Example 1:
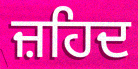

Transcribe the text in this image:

ਜ਼ਹਿਦ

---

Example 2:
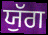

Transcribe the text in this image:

ਯੁੱਗ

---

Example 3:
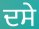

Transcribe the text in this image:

ਦਸੇ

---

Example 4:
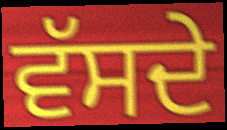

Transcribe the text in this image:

ਵੱਸਦੇ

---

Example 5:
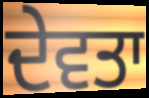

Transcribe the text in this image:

ਦੇਵਤਾ